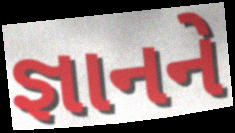
જ્ઞાનને